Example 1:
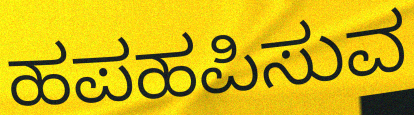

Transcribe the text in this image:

ಹಪಹಪಿಸುವ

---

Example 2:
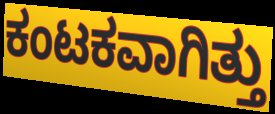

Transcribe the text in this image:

ಕಂಟಕವಾಗಿತ್ತು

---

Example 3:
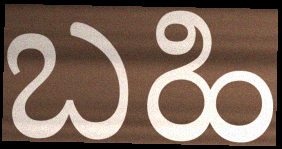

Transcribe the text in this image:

ಬಹಿ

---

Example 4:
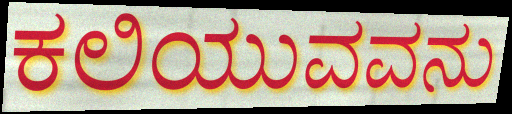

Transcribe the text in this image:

ಕಲಿಯುವವನು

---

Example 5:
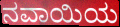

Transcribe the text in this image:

ನವಾಯಿಯ